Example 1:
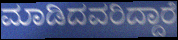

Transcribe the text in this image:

ಮಾಡಿದವರಿದ್ದಾರೆ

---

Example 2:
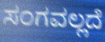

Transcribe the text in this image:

ಸಂಗವಲ್ಲದೆ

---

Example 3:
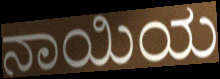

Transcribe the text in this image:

ನಾಯಿಯ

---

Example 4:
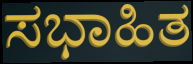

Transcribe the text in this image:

ಸಭಾಹಿತ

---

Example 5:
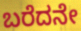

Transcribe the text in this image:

ಬರೆದನೇ